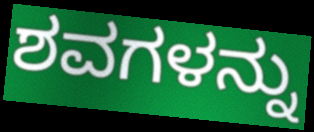
ಶವಗಳನ್ನು